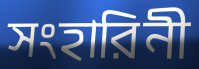
সংহারিনী